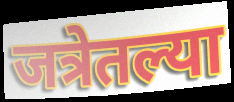
जत्रेतल्या